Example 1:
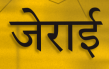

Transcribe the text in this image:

जेराई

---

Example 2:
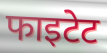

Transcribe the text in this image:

फाइटेट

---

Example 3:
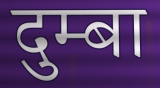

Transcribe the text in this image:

दुम्बा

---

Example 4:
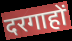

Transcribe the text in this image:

दरगाहों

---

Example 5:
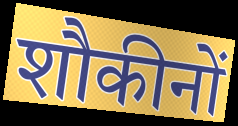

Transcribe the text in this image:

शौकीनों